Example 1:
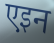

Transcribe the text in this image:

एइन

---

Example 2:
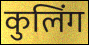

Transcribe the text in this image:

कुलिंग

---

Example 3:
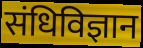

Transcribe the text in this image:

संधिविज्ञान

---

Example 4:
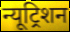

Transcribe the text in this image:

न्यूट्रिशन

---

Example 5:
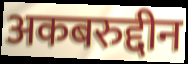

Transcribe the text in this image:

अकबरुद्दीन